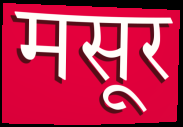
मसूर